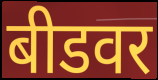
बीडवर